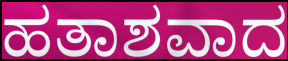
ಹತಾಶವಾದ